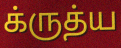
க்ருத்ய